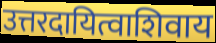
उत्तरदायित्वाशिवाय